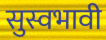
सुस्वभावी